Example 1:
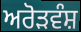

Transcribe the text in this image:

ਅਰੋੜਵੰਸ਼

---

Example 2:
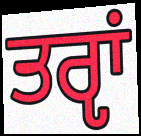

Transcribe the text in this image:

ਤਰੵਾਂ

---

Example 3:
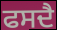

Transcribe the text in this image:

ਫਸਦੈ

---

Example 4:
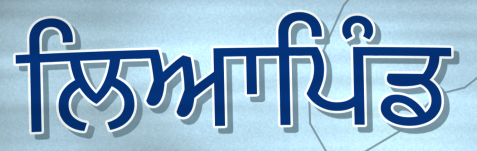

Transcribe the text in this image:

ਲਿਆਪਿੰਡ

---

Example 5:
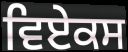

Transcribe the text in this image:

ਵਿਏਕਸ